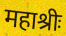
महाश्रीः